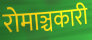
रोमाञ्चकारी